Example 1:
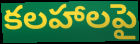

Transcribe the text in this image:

కలహాలపై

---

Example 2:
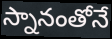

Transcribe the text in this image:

స్నానంతోనే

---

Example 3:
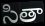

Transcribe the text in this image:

సితా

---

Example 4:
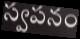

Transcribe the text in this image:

స్వపనం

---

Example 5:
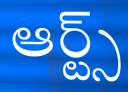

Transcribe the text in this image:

ఆర్ట్స్